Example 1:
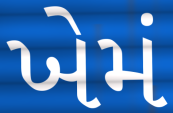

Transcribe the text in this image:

ખેમં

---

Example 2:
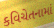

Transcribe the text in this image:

કવિચેતનામાં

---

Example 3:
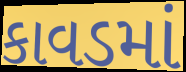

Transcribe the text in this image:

કાવડમાં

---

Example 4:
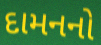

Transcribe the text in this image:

દામનનો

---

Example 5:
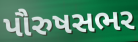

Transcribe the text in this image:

પૌરુષસભર